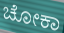
ಚೋಕಾ